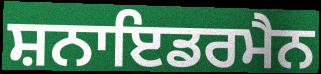
ਸ਼ਨਾਇਡਰਮੈਨ